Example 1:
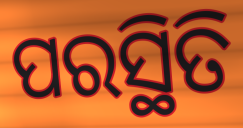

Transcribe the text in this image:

ପରସ୍ଥିତି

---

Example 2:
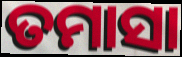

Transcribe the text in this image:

ତମାସା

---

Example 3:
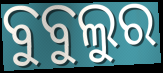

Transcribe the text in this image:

ବୁବୁଲୁର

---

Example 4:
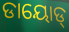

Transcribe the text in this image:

ଡାୟୋଡ୍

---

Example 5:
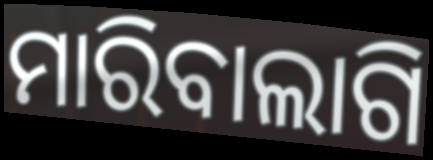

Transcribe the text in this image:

ମାରିବାଲାଗି